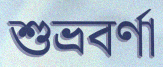
শুভ্রবর্ণা